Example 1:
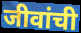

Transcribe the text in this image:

जीवांची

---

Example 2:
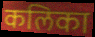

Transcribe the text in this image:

कलिका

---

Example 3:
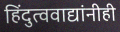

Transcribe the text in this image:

हिंदुत्ववाद्यांनीही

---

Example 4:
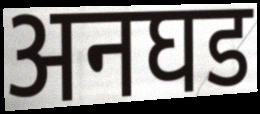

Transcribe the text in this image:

अनघड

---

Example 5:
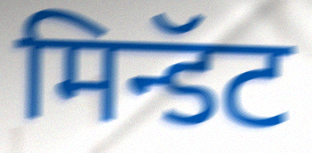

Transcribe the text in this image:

मिन्डॅट